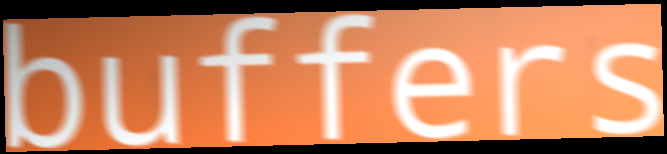
buffers